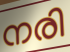
നരി